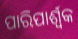
ପାରିପାର୍ଶ୍ଵକ